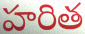
హరిత